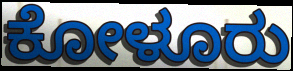
ಕೋಳೂರು